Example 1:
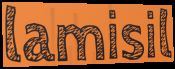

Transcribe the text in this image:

lamisil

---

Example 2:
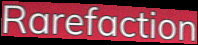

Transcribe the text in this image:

Rarefaction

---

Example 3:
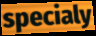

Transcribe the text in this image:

specialy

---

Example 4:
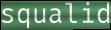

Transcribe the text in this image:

squalid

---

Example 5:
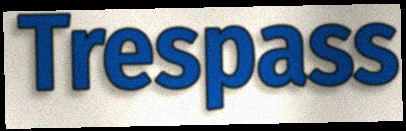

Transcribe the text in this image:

Trespass